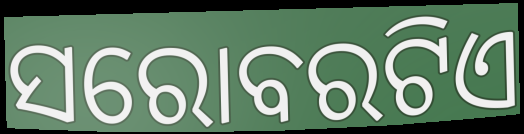
ସରୋବରଟିଏ